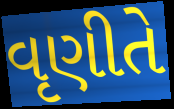
વૃણીતે